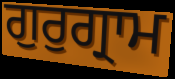
ਗੁਰੁਗ੍ਰਾਮ